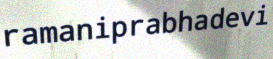
ramaniprabhadevi